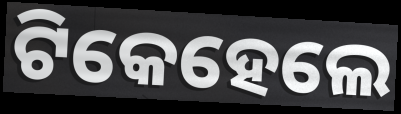
ଟିକେହେଲେ